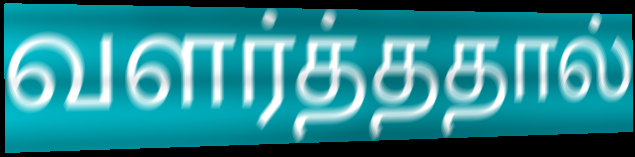
வளர்த்ததால்